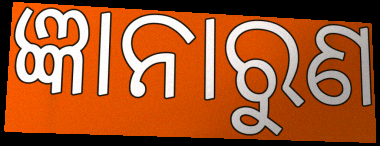
ଜ୍ଞାନାରୁଣ